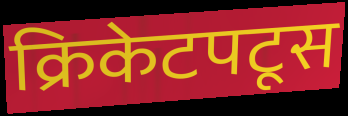
क्रिकेटपटूस